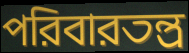
পরিবারতন্ত্র